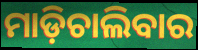
ମାଡ଼ିଚାଲିବାର